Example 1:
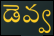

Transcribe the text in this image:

డెవ్వ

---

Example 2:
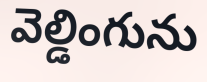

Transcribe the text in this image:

వెల్డింగును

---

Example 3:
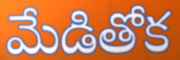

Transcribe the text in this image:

మేడితోక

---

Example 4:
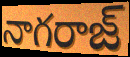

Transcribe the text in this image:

నాగరాజ్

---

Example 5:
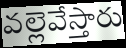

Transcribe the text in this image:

వల్లెవేస్తారు